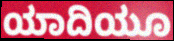
ಯಾದಿಯೂ